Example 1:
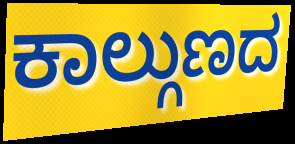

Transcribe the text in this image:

ಕಾಲ್ಗುಣದ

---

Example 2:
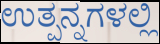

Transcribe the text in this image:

ಉತ್ಪನ್ನಗಳಲ್ಲಿ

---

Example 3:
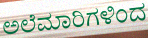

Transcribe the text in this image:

ಅಲೆಮಾರಿಗಳಿಂದ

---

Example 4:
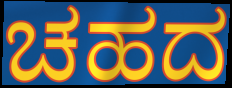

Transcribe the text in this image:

ಚಹದ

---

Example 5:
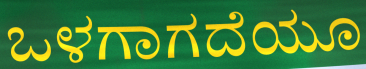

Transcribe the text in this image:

ಒಳಗಾಗದೆಯೂ